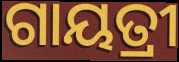
ଗାୟତ୍ରୀ